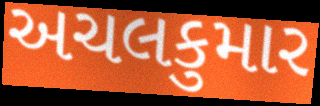
અચલકુમાર